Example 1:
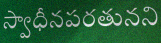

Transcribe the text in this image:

స్వాధీనపరతునని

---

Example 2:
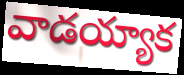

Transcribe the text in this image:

వాడయ్యాక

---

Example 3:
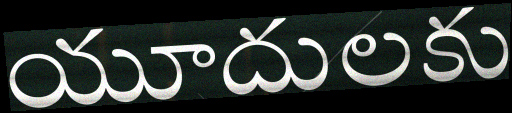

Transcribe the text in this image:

యూదులకు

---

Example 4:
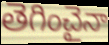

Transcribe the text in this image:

తెగించైనా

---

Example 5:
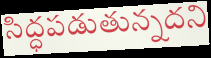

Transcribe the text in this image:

సిద్ధపడుతున్నదని